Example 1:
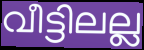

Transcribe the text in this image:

വീട്ടിലല്ല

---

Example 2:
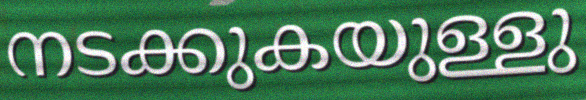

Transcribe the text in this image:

നടക്കുകയുള്ളു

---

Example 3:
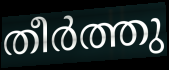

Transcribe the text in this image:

തീർത്തു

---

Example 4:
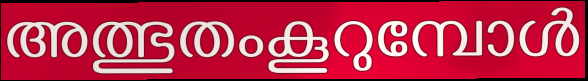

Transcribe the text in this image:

അത്ഭുതംകൂറുമ്പോൾ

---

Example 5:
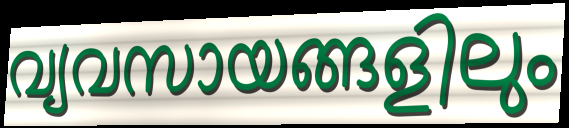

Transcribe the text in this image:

വ്യവസായങ്ങളിലും